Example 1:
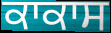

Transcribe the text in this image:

ਕਾਕਾਸ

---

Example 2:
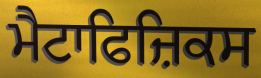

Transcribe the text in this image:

ਮੈਟਾਫਿਜ਼ਿਕਸ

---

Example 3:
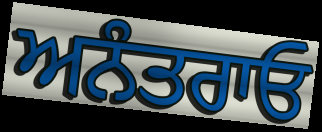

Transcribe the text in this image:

ਅਨੰਤਰਾਓ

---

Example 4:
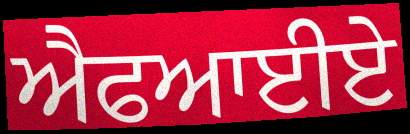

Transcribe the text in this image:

ਐਫਆਈਏ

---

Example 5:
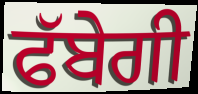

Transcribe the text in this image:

ਫੱਬੇਗੀ